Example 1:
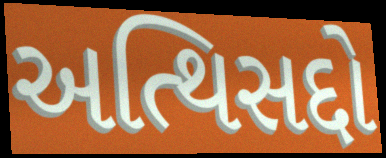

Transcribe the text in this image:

અત્થિસદ્દો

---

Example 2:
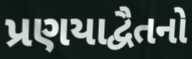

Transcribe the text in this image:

પ્રણયાદ્વૈતનો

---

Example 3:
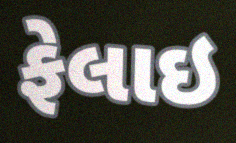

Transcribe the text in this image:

ફેલાઇ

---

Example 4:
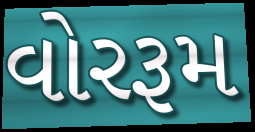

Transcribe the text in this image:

વોરરૂમ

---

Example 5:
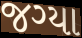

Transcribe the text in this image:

જગ્યા